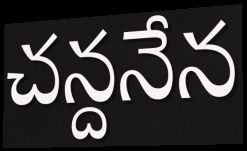
చన్దనేన